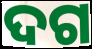
ଦଗ